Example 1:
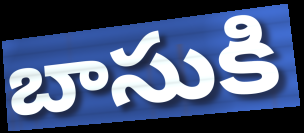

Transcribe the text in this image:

బాసుకి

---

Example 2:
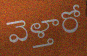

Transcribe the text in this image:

వెళ్తారో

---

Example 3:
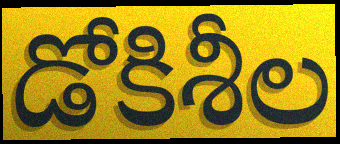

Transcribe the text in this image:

డోకిశీల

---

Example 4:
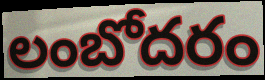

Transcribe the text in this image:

లంబోదరం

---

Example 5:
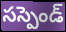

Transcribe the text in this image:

సస్పెండ్